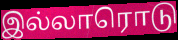
இல்லாரொடு